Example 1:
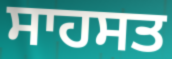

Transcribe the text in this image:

ਸਾਹਸਤ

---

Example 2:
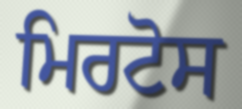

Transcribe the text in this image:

ਮਿਰਟੋਸ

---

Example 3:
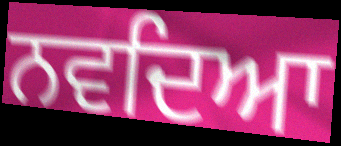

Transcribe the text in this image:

ਨਵਦਿਆ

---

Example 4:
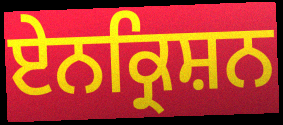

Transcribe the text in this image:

ਏਨਕ੍ਰਿਸ਼ਨ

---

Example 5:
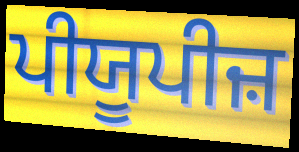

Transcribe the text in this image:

ਪੀਯੂਪੀਜ਼